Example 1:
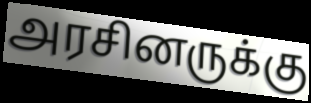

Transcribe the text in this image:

அரசினருக்கு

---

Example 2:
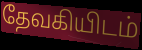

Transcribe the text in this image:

தேவகியிடம்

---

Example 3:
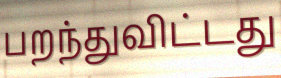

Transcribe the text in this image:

பறந்துவிட்டது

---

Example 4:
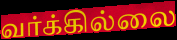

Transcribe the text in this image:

வர்க்கில்லை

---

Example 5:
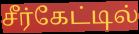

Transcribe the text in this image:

சீர்கேட்டில்